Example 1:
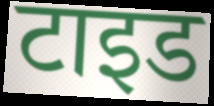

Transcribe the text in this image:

टाइड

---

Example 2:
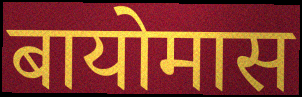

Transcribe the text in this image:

बायोमास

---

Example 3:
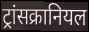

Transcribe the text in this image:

ट्रांसक्रानियल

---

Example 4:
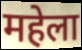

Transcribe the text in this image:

महेला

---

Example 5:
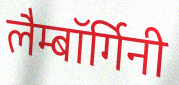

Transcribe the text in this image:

लैम्बॉर्गिनी